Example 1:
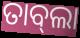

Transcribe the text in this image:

ତାବ୍‌ଲା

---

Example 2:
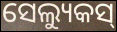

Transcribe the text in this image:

ସେଲ୍ୟୁକସ୍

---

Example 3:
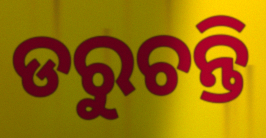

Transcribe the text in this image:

ଡରୁଚନ୍ତି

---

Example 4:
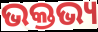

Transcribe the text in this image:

ଭକ୍ତଭ୍ୟ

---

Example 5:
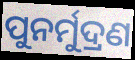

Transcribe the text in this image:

ପୁନର୍ମୁଦ୍ରଣ